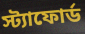
স্ট্যাফোর্ড